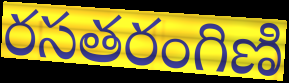
రసతరంగిణి